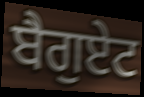
ਬੈਗੁਏਟ